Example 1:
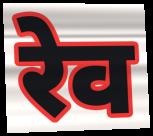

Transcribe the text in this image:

रेव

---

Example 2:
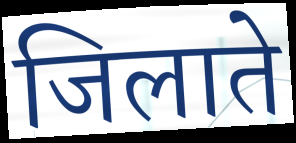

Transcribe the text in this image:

जिलाते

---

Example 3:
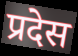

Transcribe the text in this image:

प्रदेस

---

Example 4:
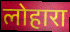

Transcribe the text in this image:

लोहारा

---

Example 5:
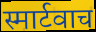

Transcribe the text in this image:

स्मार्टवाच